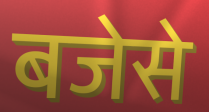
बजेसे